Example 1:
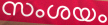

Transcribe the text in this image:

സംശയം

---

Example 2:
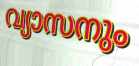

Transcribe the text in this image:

വ്യാസനും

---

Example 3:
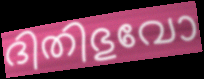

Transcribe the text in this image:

ദിതിഭുവോ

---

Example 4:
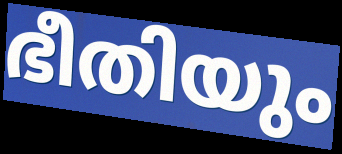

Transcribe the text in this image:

ഭീതിയും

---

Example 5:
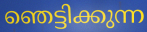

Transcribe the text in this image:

ഞെട്ടിക്കുന്ന